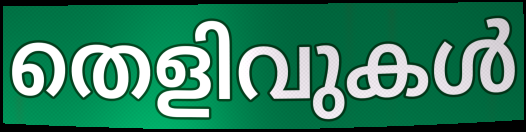
തെളിവുകൾ